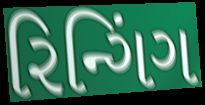
રિન્ગિંગ